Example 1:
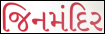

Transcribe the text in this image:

જિનમંદિર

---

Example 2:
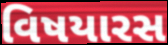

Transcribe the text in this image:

વિષયારસ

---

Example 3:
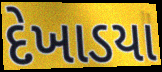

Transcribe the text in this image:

દેખાડયા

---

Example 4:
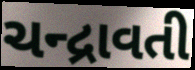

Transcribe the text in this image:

ચન્દ્રાવતી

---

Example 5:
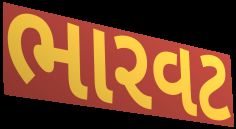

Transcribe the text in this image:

ભારવટ